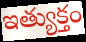
ఇత్యుక్తం